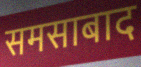
समसाबाद